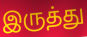
இருத்து